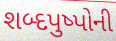
શબ્દપુષ્પોની